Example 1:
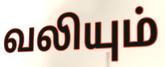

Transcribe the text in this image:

வலியும்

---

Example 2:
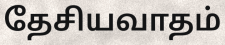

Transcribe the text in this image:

தேசியவாதம்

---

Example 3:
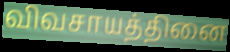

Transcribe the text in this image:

விவசாயத்தினை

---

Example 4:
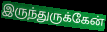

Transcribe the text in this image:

இருந்துருக்கேன்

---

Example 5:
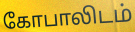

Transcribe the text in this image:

கோபாலிடம்